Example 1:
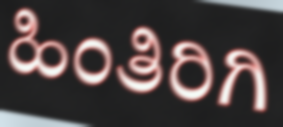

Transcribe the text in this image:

ಹಿಂತಿರಿಗಿ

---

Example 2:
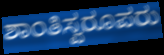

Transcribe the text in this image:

ಶಾಂತಿಸ್ವರೂಪರು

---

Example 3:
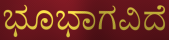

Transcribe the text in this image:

ಭೂಭಾಗವಿದೆ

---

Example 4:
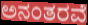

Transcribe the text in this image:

ಅನಂತರವೆ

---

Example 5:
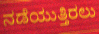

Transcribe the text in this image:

ನಡೆಯುತ್ತಿರಲು